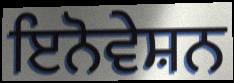
ਇਨੋਵੇਸ਼ਨ